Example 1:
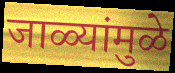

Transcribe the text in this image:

जाळ्यांमुळे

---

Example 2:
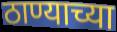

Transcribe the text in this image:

ठाण्याच्या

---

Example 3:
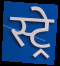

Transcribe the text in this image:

स्ट्रे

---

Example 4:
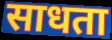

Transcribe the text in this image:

साधता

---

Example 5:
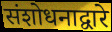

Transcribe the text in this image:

संशोधनाद्वारे